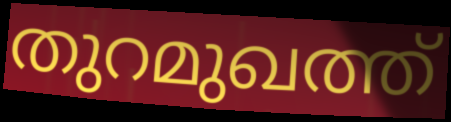
തുറമുഖത്ത്